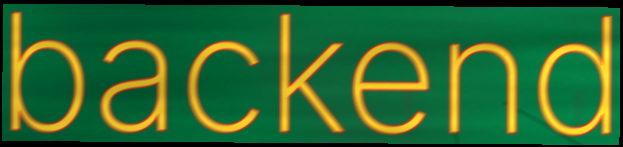
backend